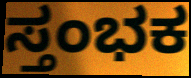
ಸ್ತಂಭಕ